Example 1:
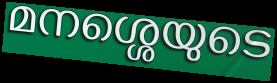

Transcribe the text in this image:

മനശ്ശെയുടെ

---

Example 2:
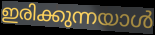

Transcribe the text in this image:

ഇരിക്കുന്നയാൾ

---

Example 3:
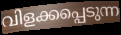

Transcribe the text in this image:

വിളക്കപ്പെടുന്ന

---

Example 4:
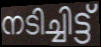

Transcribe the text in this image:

നടിച്ചിട്ട്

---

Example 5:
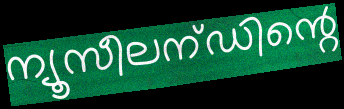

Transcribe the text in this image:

ന്യൂസീലന്ഡിന്റെ